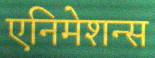
एनिमेशन्स